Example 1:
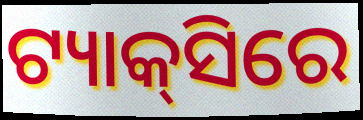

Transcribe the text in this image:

ଟ୍ୟାକ୍‍ସିରେ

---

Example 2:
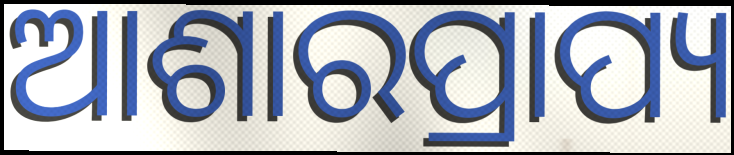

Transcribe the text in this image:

ଆଶାରପ୍ରାପ୍ୟ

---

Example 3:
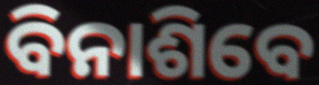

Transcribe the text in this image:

ବିନାଶିବେ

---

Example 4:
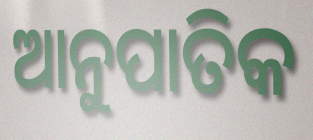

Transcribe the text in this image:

ଆନୁପାତିକ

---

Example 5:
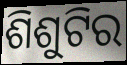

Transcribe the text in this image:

ଶିଶୁଟିର